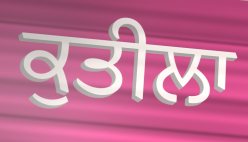
ਕੁਤੀਲਾ